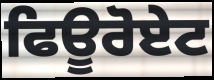
ਫਿਊਰੋਏਟ